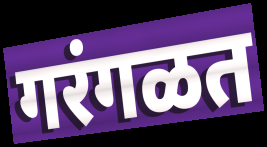
गरंगळत